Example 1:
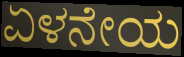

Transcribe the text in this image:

ಏಳನೇಯ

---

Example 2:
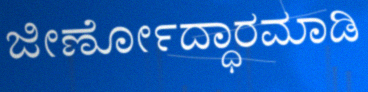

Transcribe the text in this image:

ಜೀರ್ಣೋದ್ಧಾರಮಾಡಿ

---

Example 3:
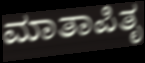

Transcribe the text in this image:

ಮಾತಾಪಿತೃ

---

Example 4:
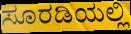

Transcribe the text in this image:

ಸೂರಡಿಯಲ್ಲಿ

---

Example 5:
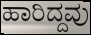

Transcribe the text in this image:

ಹಾರಿದ್ದವು